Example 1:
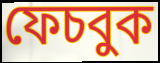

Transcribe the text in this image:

ফেচবুক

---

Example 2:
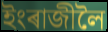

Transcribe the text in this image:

ইংৰাজীলৈ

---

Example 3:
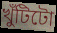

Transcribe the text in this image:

খুঁটিটো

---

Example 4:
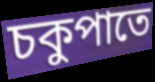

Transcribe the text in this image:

চকুপাতে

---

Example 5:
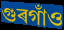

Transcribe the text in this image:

গুৰগাঁও